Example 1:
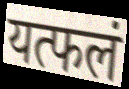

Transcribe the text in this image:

यत्फलं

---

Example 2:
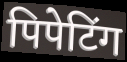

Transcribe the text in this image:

पिपेटिंग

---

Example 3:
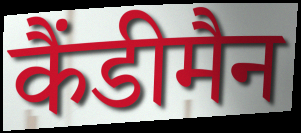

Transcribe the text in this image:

कैंडीमैन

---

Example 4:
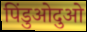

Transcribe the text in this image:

पिंडुओदुओ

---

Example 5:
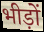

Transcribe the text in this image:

भीड़ों